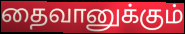
தைவானுக்கும்